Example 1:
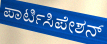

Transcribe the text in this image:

ಪಾರ್ಟಿಸಿಪೇಶನ್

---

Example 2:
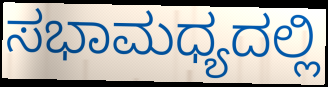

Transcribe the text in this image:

ಸಭಾಮಧ್ಯದಲ್ಲಿ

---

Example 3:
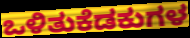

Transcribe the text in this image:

ಒಳಿತುಕೆಡಕುಗಳ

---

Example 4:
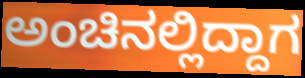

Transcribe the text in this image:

ಅಂಚಿನಲ್ಲಿದ್ದಾಗ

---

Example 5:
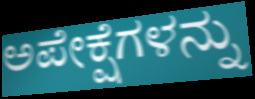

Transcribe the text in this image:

ಅಪೇಕ್ಷೆಗಳನ್ನು